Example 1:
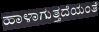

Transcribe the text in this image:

ಹಾಳಾಗುತ್ತದೆಯಂತೆ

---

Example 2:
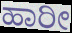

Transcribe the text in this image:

ಹಾರೀ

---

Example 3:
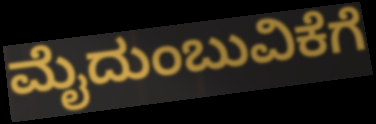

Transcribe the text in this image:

ಮೈದುಂಬುವಿಕೆಗೆ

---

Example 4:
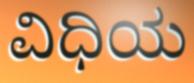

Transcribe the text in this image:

ವಿಧಿಯ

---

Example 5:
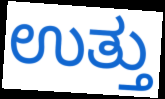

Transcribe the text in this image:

ಉತ್ತು